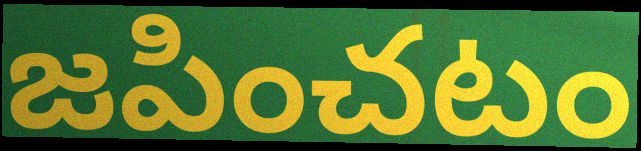
జపించటం